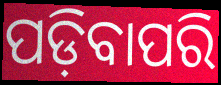
ପଡ଼ିବାପରି